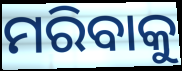
ମରିବାକୁ